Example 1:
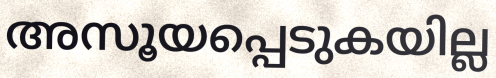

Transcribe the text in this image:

അസൂയപ്പെടുകയില്ല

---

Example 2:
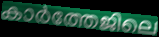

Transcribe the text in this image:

കാർത്തേജിലെ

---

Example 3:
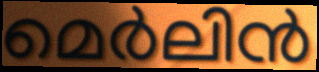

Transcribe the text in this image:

മെർലിൻ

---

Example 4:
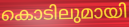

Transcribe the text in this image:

കൊടിലുമായി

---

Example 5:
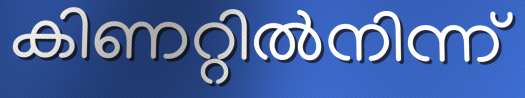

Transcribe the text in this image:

കിണറ്റിൽനിന്ന്